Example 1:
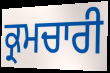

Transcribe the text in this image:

ਕ੍ਰਮਚਾਰੀ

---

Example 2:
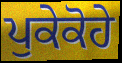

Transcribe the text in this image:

ਪੁਕੇਕੋਹੇ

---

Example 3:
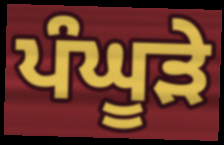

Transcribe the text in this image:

ਪੰਘੂੜੇ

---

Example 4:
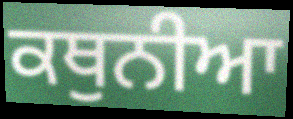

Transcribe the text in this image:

ਕਥੁਨੀਆ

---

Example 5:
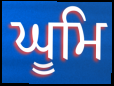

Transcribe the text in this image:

ਘੂਮਿ